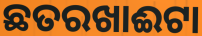
ଛତରଖାଈଟା